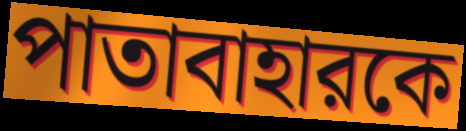
পাতাবাহারকে